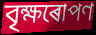
বৃক্ষৰোপণ